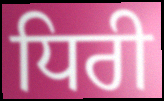
ਧਿਰੀ